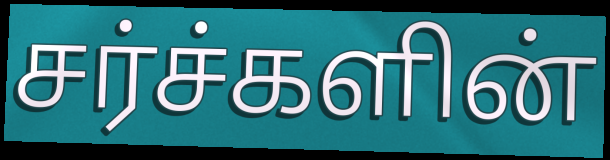
சர்ச்களின்